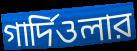
গার্দিওলার